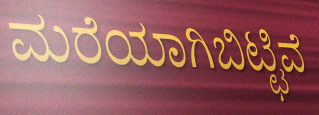
ಮರೆಯಾಗಿಬಿಟ್ಟಿವೆ